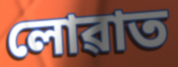
লোৱাত